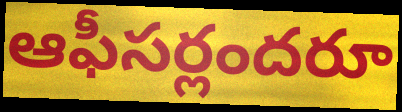
ఆఫీసర్లందరూ